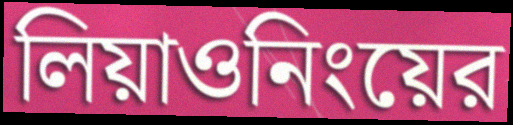
লিয়াওনিংয়ের